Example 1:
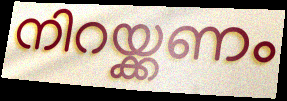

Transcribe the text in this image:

നിറയ്ക്കണം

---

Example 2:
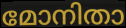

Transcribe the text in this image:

മോനിതാ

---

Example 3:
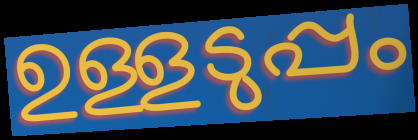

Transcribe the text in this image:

ഉള്ളടുപ്പം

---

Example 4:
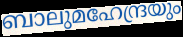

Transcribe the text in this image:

ബാലുമഹേന്ദ്രയും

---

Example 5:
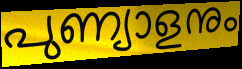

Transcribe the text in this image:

പുണ്യാളനും